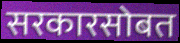
सरकारसोबत